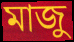
মাজু